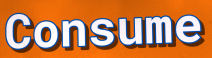
Consume